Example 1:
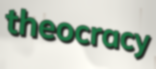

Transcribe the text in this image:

theocracy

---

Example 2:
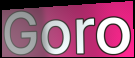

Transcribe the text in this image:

Goro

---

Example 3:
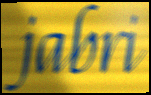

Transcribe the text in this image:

jabri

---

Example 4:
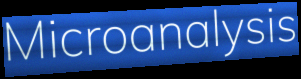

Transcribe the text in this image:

Microanalysis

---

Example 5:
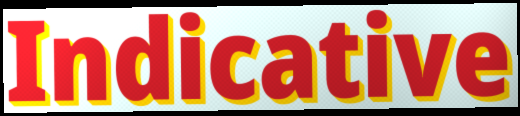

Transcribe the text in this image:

Indicative